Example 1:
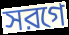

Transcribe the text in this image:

সরগে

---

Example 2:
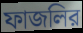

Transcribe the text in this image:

ফাজলির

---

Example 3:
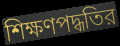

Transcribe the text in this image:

শিক্ষণপদ্ধতির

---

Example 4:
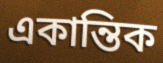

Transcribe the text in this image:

একান্তিক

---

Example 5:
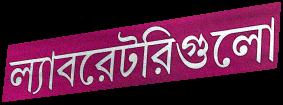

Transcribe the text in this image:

ল্যাবরেটরিগুলো